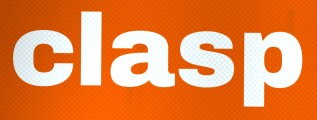
clasp